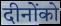
दीनोंको